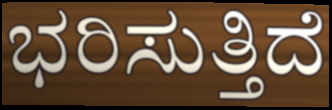
ಭರಿಸುತ್ತಿದೆ